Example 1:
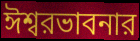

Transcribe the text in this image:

ঈশ্বরভাবনার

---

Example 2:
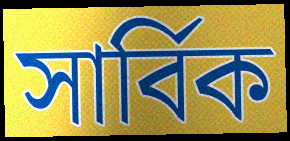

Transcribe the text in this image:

সার্বিক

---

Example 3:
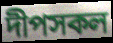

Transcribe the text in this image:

দীপসকল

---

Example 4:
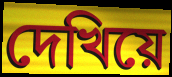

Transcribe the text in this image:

দেখিয়ে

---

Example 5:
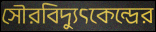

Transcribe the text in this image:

সৌরবিদ্যুৎকেন্দ্রের